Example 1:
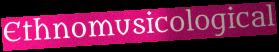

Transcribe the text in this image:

Ethnomusicological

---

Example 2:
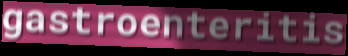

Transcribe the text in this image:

gastroenteritis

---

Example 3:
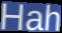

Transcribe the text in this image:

Hah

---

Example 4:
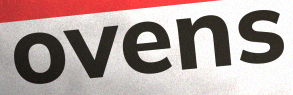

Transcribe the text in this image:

ovens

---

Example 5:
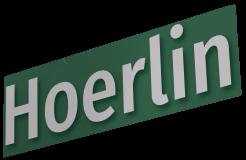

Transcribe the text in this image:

Hoerlin